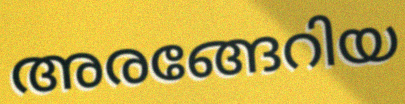
അരങ്ങേറിയ